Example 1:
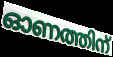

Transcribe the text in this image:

ഓണത്തിന്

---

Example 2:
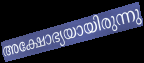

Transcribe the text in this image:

അക്ഷോഭ്യയായിരുന്നു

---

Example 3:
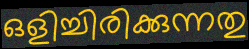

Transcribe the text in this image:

ഒളിച്ചിരിക്കുന്നതു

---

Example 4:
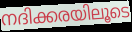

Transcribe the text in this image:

നദിക്കരയിലൂടെ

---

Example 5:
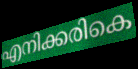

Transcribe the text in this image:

എനിക്കരികെ